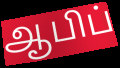
ஆபிப்